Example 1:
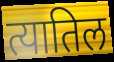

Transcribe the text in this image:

त्यातिल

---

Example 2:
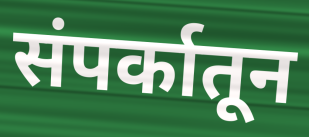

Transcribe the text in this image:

संपर्कातून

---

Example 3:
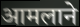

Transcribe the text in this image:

आमलाने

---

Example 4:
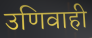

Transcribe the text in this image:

उणिवाही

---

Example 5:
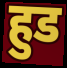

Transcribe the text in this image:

हुड